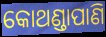
କୋଥଣ୍ଡାପାଣି